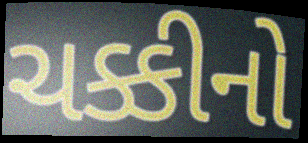
ચક્કીનો